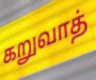
கறுவாத்